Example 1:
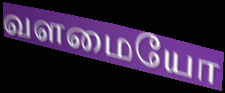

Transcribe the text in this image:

வளமையோ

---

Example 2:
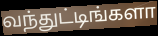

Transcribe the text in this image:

வந்துட்டிங்களா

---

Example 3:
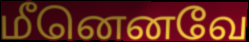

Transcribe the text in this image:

மீனெனவே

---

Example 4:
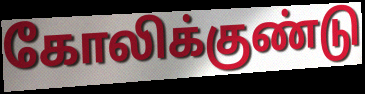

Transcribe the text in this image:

கோலிக்குண்டு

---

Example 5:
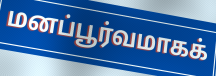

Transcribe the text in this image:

மனப்பூர்வமாகக்